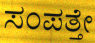
ಸಂಪತ್ತೇ